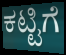
ಕಟ್ಟಿಗೆ